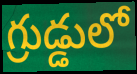
గ్రుడ్డులో